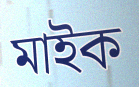
মাইক